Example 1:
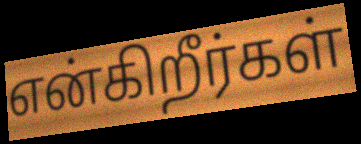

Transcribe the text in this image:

என்கிறீர்கள்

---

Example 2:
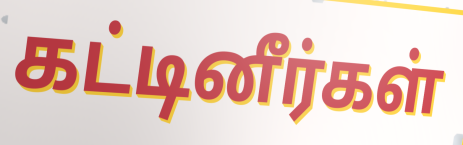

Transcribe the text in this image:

கட்டினீர்கள்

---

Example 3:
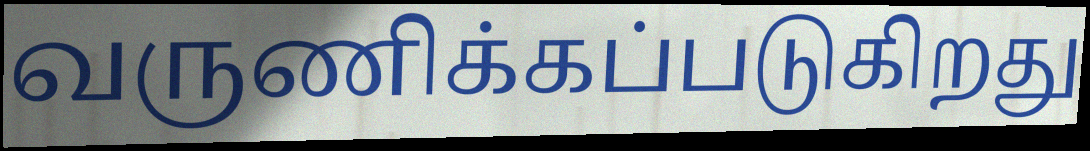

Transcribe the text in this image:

வருணிக்கப்படுகிறது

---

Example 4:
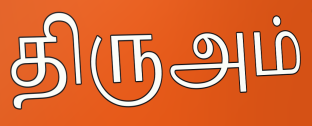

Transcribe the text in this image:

திருஅம்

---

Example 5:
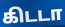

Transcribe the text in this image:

கிடடா